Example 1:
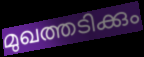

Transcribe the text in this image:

മുഖത്തടിക്കും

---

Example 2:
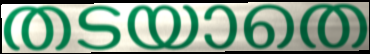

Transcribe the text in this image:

തടയാതെ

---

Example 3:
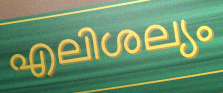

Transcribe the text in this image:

എലിശല്യം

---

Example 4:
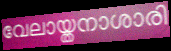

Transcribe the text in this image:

വേലായ്തനാശാരി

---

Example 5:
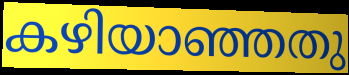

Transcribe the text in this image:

കഴിയാഞ്ഞതു